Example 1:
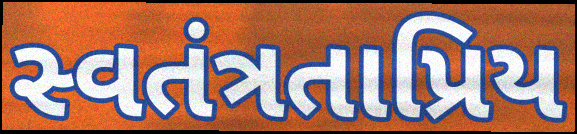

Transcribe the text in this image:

સ્વતંત્રતાપ્રિય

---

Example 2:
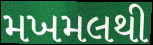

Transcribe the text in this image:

મખમલથી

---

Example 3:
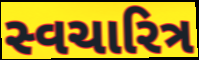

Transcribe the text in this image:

સ્વચારિત્ર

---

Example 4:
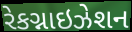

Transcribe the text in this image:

રેકગ્નાઇઝેશન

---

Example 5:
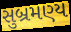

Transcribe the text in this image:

સુબ્રમણ્ય